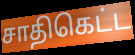
சாதிகெட்ட